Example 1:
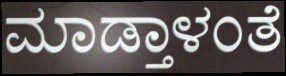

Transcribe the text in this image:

ಮಾಡ್ತಾಳಂತೆ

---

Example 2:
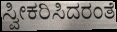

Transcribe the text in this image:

ಸ್ವೀಕರಿಸಿದರಂತೆ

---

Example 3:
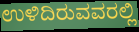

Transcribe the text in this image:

ಉಳಿದಿರುವವರಲ್ಲಿ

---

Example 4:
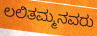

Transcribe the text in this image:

ಲಲಿತಮ್ಮನವರು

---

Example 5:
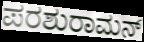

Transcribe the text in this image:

ಪರಶುರಾಮನ್